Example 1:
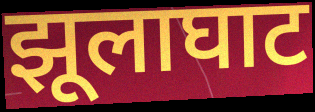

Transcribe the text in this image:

झूलाघाट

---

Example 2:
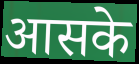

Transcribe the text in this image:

आसके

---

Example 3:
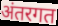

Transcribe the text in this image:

अंतरगत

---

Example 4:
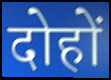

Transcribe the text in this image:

दोहों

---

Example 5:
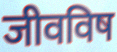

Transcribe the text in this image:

जीवविष